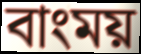
বাংময়